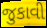
જુકાવી